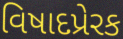
વિષાદપ્રેરક